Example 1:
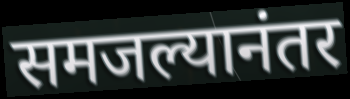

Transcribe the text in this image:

समजल्यानंतर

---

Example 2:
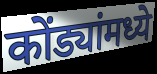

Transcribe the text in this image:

कोंड्यांमध्ये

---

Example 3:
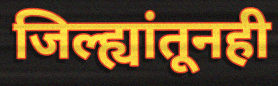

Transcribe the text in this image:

जिल्ह्यांतूनही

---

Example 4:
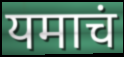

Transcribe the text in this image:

यमाचं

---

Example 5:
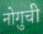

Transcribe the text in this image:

नोगुची